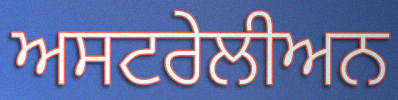
ਅਸਟਰੇਲੀਅਨ